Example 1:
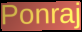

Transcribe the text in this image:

Ponraj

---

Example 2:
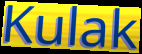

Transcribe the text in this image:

Kulak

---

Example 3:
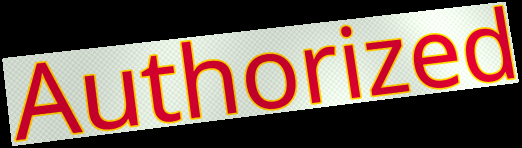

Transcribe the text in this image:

Authorized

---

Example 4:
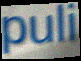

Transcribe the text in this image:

puli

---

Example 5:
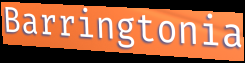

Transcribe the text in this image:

Barringtonia